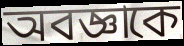
অবজ্ঞাকে